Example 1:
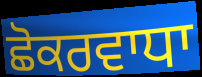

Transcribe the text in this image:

ਛੋਕਰਵਾਧਾ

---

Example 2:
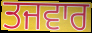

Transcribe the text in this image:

ਤਜਵਾਰ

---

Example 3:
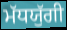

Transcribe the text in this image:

ਮੱਧਯੁੱਗੀ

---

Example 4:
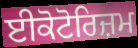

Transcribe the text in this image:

ਈਕੋਟੋਰਿਜ਼ਮ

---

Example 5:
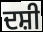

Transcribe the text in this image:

ਦਸ਼ੀ